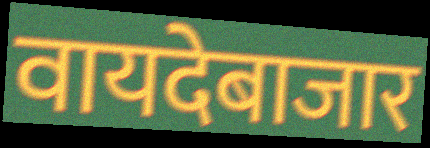
वायदेबाजार